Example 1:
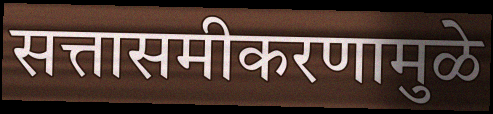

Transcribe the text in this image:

सत्तासमीकरणामुळे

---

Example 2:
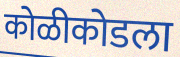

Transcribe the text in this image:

कोळीकोडला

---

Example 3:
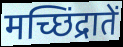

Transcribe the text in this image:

मच्छिंद्रातें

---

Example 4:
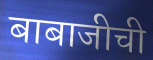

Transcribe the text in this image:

बाबाजीची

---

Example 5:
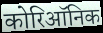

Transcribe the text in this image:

कोरिऑनिक